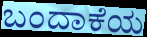
ಬಂದಾಕೆಯ